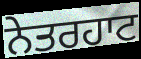
ਨੇਤਰਹਾਟ